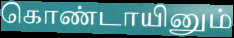
கொண்டாயினும்